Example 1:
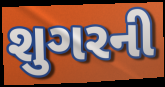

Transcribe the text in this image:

શુગરની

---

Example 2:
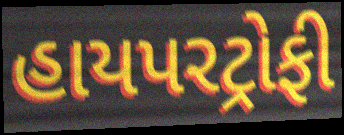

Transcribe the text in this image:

હાયપરટ્રોફી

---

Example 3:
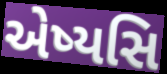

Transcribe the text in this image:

એષ્યસિ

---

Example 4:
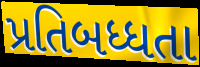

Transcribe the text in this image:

પ્રતિબધ્ધતા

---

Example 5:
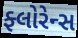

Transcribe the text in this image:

ફ્લોરેન્સ